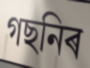
গছনিৰ